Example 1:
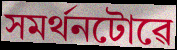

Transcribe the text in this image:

সমৰ্থনটোৱে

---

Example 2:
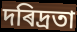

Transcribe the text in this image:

দৰিদ্ৰতা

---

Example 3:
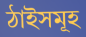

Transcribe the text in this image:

ঠাইসমূহ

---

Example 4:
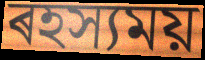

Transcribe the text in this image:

ৰহস্যময়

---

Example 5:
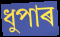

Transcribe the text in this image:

ধুপাৰ